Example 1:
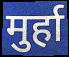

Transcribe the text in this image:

मुर्हा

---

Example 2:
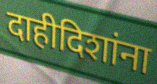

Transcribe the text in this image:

दाहीदिशांना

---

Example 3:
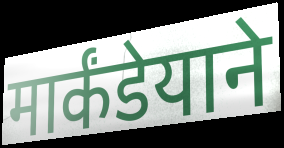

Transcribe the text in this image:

मार्कंडेयाने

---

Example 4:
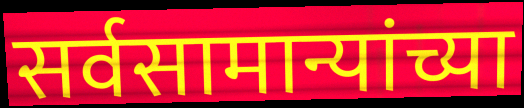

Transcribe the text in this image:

सर्वसामान्यांच्या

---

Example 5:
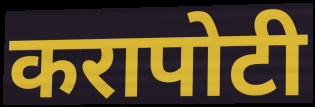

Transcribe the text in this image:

करापोटी